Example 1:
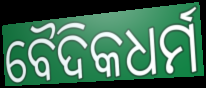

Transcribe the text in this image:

ବୈଦିକଧର୍ମ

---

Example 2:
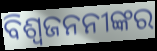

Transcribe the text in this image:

ବିଶ୍ୱଜନନୀଙ୍କର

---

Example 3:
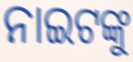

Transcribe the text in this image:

ନାଇଟଙ୍କୁ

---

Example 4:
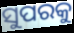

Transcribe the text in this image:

ସୁପରକୁ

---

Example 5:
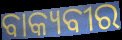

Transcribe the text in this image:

ବାକ୍ୟବୀର